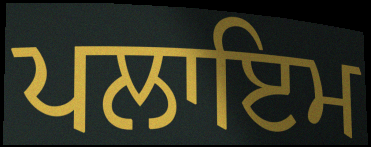
ਪਲਾਇਮ